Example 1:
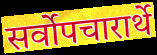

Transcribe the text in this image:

सर्वोपचारार्थे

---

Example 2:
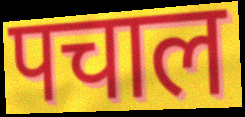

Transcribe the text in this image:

पचाल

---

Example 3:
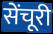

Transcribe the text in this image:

सेंचूरी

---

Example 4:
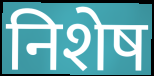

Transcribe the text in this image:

निशेष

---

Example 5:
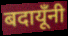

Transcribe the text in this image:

बदायूँनी